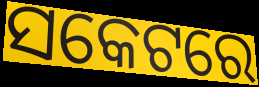
ସକେଟରେ